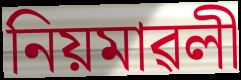
নিয়মাৱলী